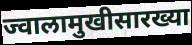
ज्वालामुखीसारख्या